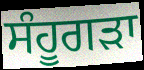
ਸੰਹੂਗੜਾ